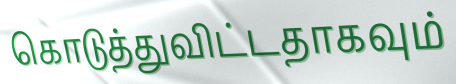
கொடுத்துவிட்டதாகவும்